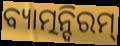
ବ୍ୟାତ୍ମନ୍ଦିରମ୍